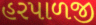
હરપાળજી